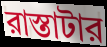
রাস্তাটার